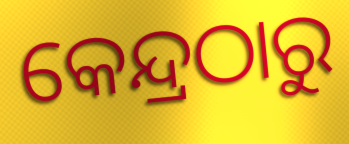
କେନ୍ଦ୍ରଠାରୁ